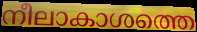
നീലാകാശത്തെ